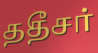
ததீசர்